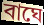
বাঘে